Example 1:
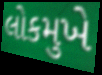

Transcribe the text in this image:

લોકમુખે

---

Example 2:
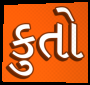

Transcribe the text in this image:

કુતો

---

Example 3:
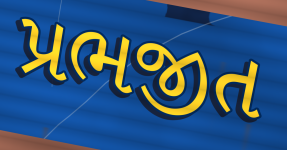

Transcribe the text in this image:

પ્રભજીત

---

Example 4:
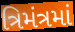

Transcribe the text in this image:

ત્રિમંત્રમાં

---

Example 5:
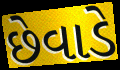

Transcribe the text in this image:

છેવાડે